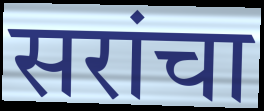
सरांचा